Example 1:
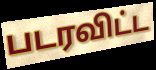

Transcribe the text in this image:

படரவிட்ட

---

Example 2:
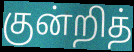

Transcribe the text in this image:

குன்றித்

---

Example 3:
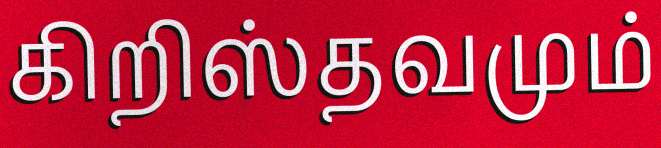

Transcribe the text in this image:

கிறிஸ்தவமும்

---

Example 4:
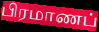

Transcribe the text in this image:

பிரமாணப்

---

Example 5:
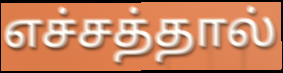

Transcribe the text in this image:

எச்சத்தால்